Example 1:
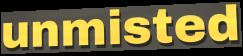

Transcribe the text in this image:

unmisted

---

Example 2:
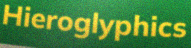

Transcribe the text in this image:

Hieroglyphics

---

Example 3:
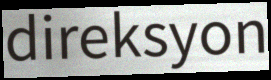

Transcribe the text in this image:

direksyon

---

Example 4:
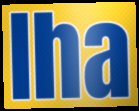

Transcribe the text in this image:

Iha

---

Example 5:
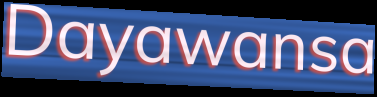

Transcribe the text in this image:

Dayawansa